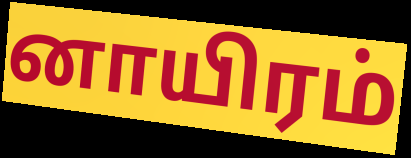
னாயிரம்